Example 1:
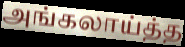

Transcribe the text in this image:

அங்கலாய்த்த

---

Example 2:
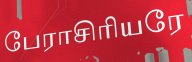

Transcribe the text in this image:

பேராசிரியரே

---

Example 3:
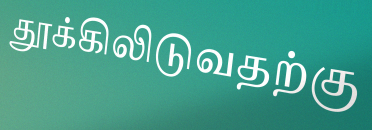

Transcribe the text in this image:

தூக்கிலிடுவதற்கு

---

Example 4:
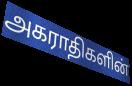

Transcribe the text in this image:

அகராதிகளின்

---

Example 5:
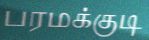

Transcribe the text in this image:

பரமக்குடி